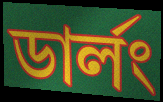
ডার্লং